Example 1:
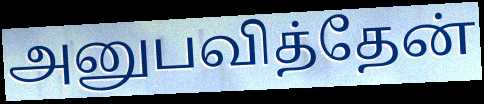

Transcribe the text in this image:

அனுபவித்தேன்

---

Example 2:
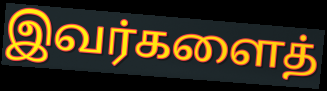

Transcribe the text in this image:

இவர்களைத்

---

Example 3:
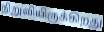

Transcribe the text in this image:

நிறுவியிருக்கிறது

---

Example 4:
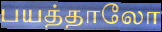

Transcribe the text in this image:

பயத்தாலோ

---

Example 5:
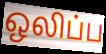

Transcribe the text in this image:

ஒலிப்ப